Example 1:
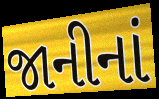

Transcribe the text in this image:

જાનીનાં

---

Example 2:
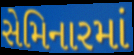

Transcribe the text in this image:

સેમિનારમાં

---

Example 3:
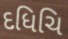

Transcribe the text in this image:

દધિચિ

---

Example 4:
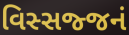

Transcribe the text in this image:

વિસ્સજ્જનં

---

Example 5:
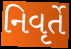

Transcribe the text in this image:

નિવૃર્તે